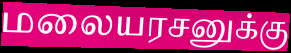
மலையரசனுக்கு